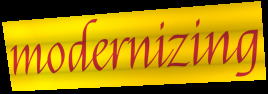
modernizing